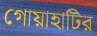
গোয়াহাটির